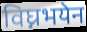
विघ्नभयेन